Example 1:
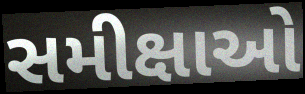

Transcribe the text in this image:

સમીક્ષાઓ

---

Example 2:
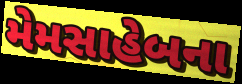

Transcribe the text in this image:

મેમસાહેબના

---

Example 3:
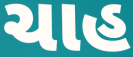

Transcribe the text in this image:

ચાહ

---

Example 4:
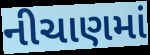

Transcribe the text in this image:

નીચાણમાં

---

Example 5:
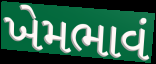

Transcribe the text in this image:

ખેમભાવં